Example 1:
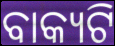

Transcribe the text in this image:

ବାକ୍ୟଟି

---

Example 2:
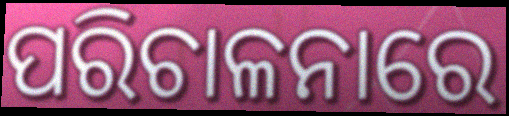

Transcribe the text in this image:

ପରିଚାଳନାରେ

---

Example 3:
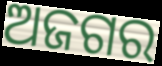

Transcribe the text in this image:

ଅଜଗର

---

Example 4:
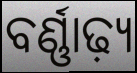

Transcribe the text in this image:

ବର୍ଣ୍ଣାଢ଼୍ୟ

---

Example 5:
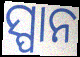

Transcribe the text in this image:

ସ୍ପାନ